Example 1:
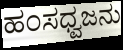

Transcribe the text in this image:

ಹಂಸಧ್ವಜನು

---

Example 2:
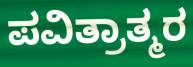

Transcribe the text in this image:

ಪವಿತ್ರಾತ್ಮರ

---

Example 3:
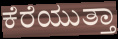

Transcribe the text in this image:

ಕೆರೆಯುತ್ತಾ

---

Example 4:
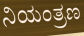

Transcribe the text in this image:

ನಿಯಂತ್ರಣ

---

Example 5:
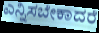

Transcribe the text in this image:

ಎನ್ನಿಸಬೇಕಾದರೆ